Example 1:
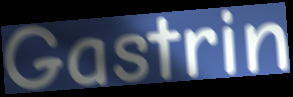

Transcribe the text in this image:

Gastrin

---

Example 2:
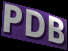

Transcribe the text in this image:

PDB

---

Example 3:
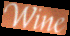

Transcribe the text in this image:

Wine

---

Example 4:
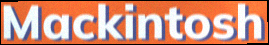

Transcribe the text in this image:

Mackintosh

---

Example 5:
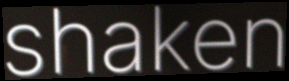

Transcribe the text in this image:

shaken